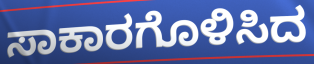
ಸಾಕಾರಗೊಳಿಸಿದ